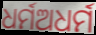
ଧର୍ମଅଧର୍ମ